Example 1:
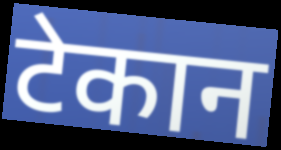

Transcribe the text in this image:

टेकान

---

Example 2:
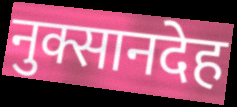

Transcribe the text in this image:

नुक्सानदेह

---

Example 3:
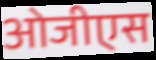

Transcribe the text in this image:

ओजीएस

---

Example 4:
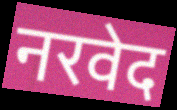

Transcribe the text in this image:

नरवेद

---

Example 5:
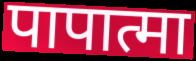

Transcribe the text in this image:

पापात्मा